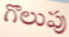
గొలుపు